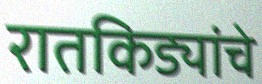
रातकिड्यांचे